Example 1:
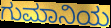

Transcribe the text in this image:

ಗುಮಾನಿಯ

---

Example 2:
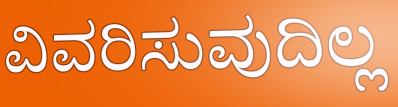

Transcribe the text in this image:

ವಿವರಿಸುವುದಿಲ್ಲ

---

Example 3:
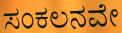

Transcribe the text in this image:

ಸಂಕಲನವೇ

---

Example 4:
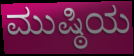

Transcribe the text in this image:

ಮುಷ್ಠಿಯ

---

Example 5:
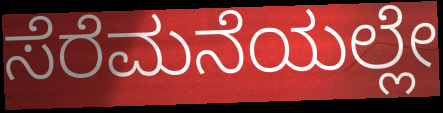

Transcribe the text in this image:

ಸೆರೆಮನೆಯಲ್ಲೇ